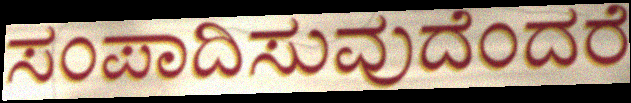
ಸಂಪಾದಿಸುವುದೆಂದರೆ